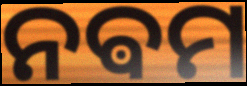
ନଵମ